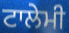
ਟਾਲੇਮੀ